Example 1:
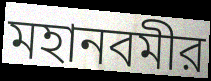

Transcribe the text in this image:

মহানবমীর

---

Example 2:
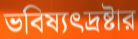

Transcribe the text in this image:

ভবিষ্যৎদ্রষ্টার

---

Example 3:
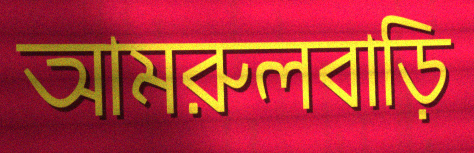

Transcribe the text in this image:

আমরুলবাড়ি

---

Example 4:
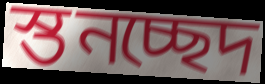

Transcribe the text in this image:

স্তনচ্ছেদ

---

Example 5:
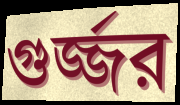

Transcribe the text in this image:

গুর্জ্জর